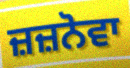
ਜ਼ਜ਼ਨੋਵਾ